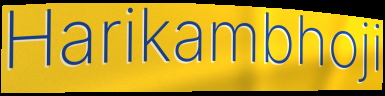
Harikambhoji